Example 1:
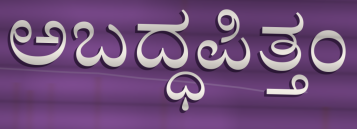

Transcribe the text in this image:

ಅಬದ್ಧಪಿತ್ತಂ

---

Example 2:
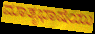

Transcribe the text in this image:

ಮಾತೃಭಾಷೆಯು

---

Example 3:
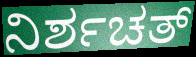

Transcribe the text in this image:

ನಿರ್ಶಚತ್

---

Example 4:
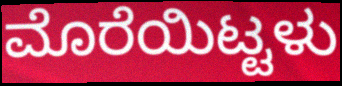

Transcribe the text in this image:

ಮೊರೆಯಿಟ್ಟಳು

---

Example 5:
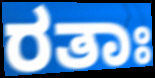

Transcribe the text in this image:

ರತಾಃ